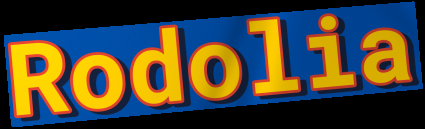
Rodolia